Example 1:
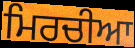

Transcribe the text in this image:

ਮਿਰਚੀਆ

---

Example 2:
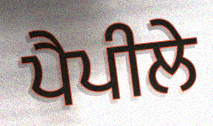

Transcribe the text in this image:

ਪੈਪੀਲੇ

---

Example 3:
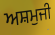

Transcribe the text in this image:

ਅਸ਼ਮੁਜੀ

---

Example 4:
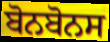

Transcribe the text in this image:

ਬੋਨਬੋਨਸ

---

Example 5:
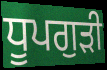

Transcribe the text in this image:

ਧੂਪਗੁੜੀ